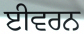
ਈਵਰਨ